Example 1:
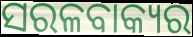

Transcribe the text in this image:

ସରଳବାକ୍ୟର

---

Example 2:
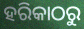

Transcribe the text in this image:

ହରିକାଠରୁ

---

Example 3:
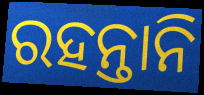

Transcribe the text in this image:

ରହନ୍ତାନି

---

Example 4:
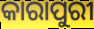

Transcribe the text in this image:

କାରାପୁରୀ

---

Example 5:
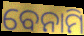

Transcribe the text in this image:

ବେନାମି